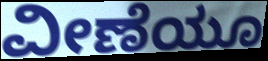
ವೀಣೆಯೂ